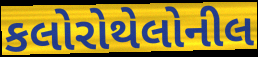
કલોરોથેલોનીલ